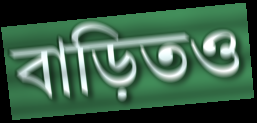
বাড়িতও